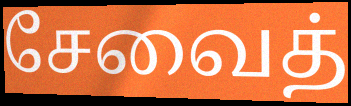
சேவைத்